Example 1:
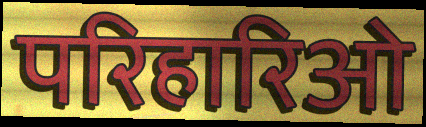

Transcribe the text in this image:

परिहारिओ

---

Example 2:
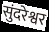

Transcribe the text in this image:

सुंदरेश्वर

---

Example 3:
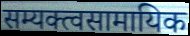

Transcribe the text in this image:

सम्यक्त्वसामायिक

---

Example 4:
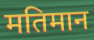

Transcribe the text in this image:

मतिमान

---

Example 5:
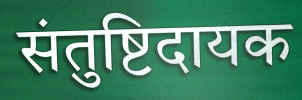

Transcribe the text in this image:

संतुष्टिदायक